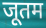
जूतम